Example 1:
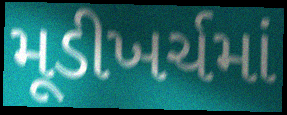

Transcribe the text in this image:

મૂડીખર્ચમાં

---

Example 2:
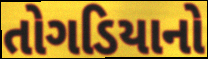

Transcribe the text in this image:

તોગડિયાનો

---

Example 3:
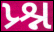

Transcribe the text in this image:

પ્ર્શ્ન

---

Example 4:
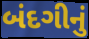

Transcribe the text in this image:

બંદગીનું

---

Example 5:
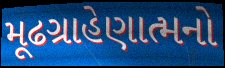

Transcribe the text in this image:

મૂઢગ્રાહેણાત્મનો